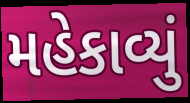
મહેકાવ્યું